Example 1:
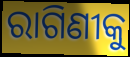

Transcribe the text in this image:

ରାଗିଣୀକୁ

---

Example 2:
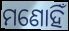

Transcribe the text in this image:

ମଣୋହିଁ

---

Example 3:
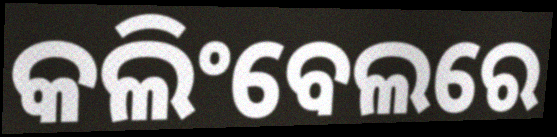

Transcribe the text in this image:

କଲିଂବେଲରେ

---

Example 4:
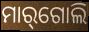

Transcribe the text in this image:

ମାର୍‌ଗୋଲି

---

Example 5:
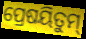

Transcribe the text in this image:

ପ୍ରେଷୟିତୁମ୍